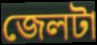
জেলটা